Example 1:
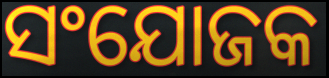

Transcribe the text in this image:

ସଂଯୋଜକ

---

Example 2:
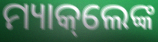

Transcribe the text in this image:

ମ୍ୟାକ୍‌ଲେଙ୍କ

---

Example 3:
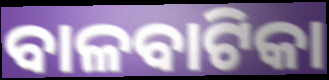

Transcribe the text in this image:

ବାଳବାଟିକା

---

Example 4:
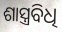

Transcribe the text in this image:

ଶାସ୍ତ୍ରବିଧି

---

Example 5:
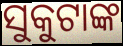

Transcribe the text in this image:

ସୁକୁଟାଙ୍କ